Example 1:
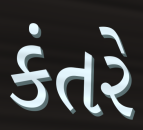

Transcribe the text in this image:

કંતરે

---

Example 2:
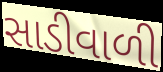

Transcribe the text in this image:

સાડીવાળી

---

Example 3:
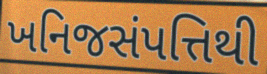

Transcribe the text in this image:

ખનિજસંપત્તિથી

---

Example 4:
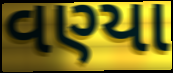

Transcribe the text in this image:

વણ્યા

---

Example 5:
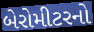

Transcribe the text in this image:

બેરોમીટરનો